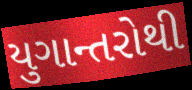
યુગાન્તરોથી